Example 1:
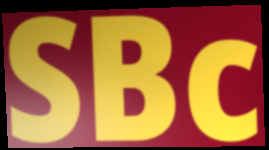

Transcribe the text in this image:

SBc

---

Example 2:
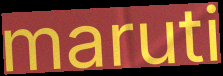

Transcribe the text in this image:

maruti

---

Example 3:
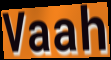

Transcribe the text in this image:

Vaah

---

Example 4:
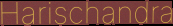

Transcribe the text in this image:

Harischandra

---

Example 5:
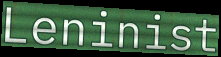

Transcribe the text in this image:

Leninist